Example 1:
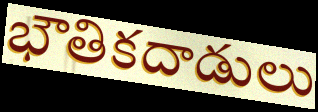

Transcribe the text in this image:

భౌతికదాడులు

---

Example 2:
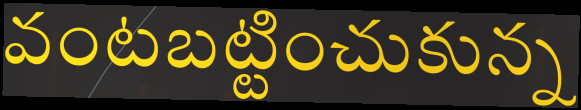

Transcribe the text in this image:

వంటబట్టించుకున్న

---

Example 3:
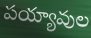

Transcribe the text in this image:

పయ్యావుల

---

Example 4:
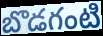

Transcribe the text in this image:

బొడగంటి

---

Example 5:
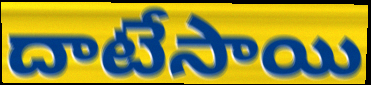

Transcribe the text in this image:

దాటేసాయి